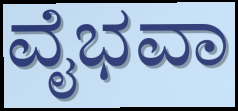
ವೈಭವಾ